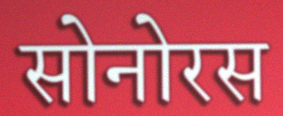
सोनोरस